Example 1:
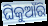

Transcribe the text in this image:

ଘିକୁଆଁରି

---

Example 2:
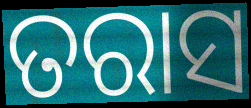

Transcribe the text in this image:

ତରାସ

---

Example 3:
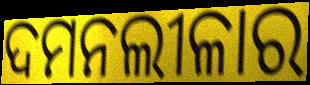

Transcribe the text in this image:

ଦମନଲୀଳାର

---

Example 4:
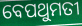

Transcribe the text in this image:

ବେପଥୁମତୀ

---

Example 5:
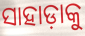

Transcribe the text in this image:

ସାହାଡ଼ାକୁ